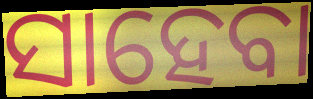
ସାହେବା